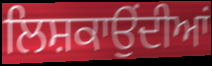
ਲਿਸ਼ਕਾਉਂਦੀਆਂ